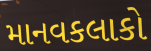
માનવકલાકો